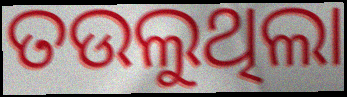
ତଉଲୁଥିଲା